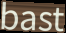
bast